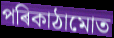
পৰিকাঠামোত